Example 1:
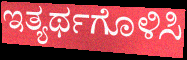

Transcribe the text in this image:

ಇತ್ಯರ್ಥಗೊಳಿಸಿ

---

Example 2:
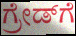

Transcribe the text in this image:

ಗ್ರೇಡ್‌ಗೆ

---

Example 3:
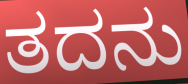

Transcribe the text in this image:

ತದನು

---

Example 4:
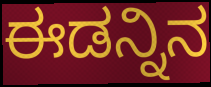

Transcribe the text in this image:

ಈಡನ್ನಿನ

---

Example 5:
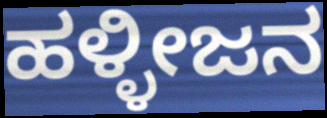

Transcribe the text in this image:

ಹಳ್ಳೀಜನ